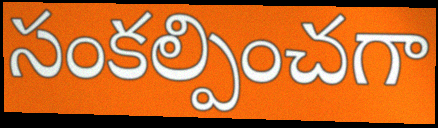
సంకల్పించగా